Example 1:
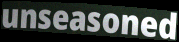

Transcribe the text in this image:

unseasoned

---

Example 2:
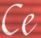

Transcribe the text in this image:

Ce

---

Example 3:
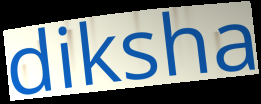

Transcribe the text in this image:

diksha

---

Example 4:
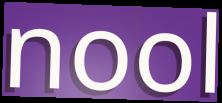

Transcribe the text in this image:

nool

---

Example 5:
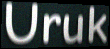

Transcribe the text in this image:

Uruk